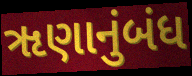
ૠણાનુંબંધ